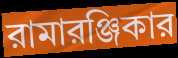
রামারঞ্জিকার